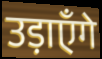
उड़ाएँगे